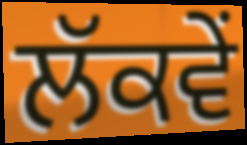
ਲੱਕਵੇਂ